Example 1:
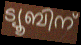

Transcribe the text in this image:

ട്യൂബിന്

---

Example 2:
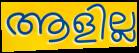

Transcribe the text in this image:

ആളില്ല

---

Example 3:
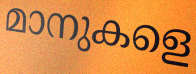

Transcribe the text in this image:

മാനുകളെ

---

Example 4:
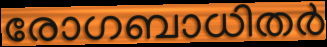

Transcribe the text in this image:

രോഗബാധിതർ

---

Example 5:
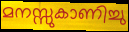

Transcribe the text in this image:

മനസ്സുകാണിച്ചു